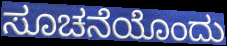
ಸೂಚನೆಯೊಂದು